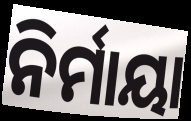
ନିର୍ମାୟା